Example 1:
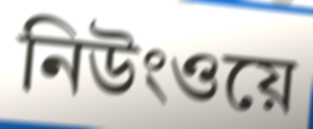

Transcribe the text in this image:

নিউংওয়ে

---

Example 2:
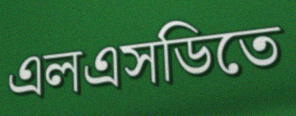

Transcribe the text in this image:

এলএসডিতে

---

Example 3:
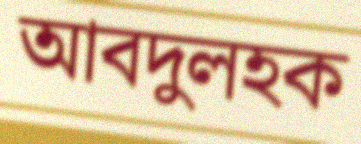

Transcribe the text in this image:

আবদুলহক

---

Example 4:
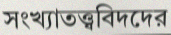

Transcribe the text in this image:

সংখ্যাতত্ত্ববিদদের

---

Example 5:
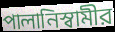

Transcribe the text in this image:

পালানিস্বামীর